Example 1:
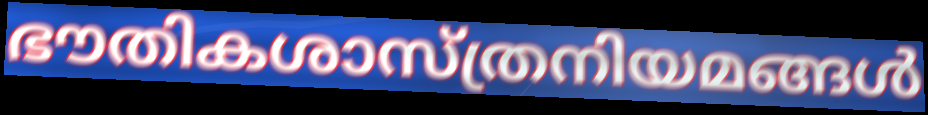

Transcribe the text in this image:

ഭൗതികശാസ്ത്രനിയമങ്ങൾ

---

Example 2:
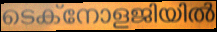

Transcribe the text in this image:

ടെക്‌നോളജിയിൽ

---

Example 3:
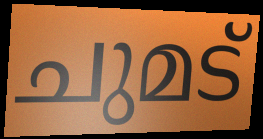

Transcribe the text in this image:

ചുമട്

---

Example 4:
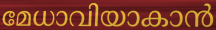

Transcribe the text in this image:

മേധാവിയാകാൻ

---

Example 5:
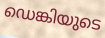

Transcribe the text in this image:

ഡെങ്കിയുടെ